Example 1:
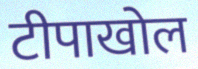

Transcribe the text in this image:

टीपाखोल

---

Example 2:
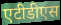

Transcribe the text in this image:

एटीडीएस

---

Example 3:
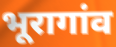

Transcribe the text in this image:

भूरागांव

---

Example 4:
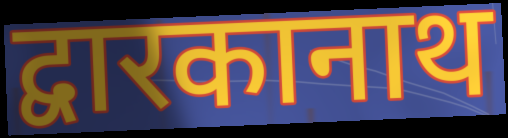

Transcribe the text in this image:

द्वारकानाथ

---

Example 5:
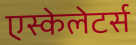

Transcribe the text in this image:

एस्केलेटर्स